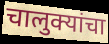
चालुक्यांचा